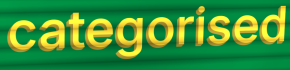
categorised